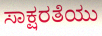
ಸಾಕ್ಷರತೆಯು